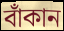
বাঁকান